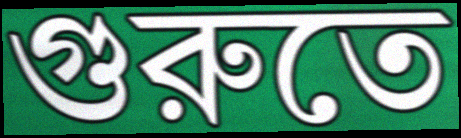
গুরুতে